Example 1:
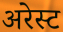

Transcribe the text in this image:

अरेस्ट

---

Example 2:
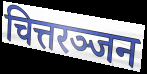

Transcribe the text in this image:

चित्तरञ्जन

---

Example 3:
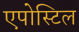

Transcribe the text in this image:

एपोस्टिल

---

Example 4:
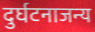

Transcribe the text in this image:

दुर्घटनाजन्य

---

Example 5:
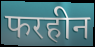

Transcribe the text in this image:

फरहीन